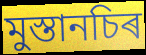
মুস্তানচিৰ